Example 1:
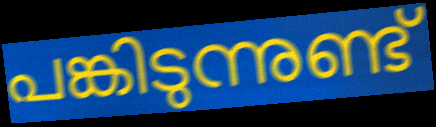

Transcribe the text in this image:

പങ്കിടുന്നുണ്ട്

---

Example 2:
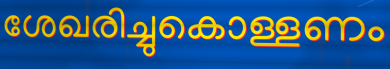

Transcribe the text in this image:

ശേഖരിച്ചുകൊള്ളണം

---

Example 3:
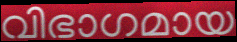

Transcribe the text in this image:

വിഭാഗമായ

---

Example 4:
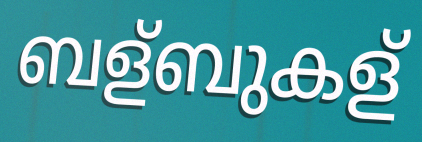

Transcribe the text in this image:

ബള്ബുകള്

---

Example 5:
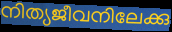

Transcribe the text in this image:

നിത്യജീവനിലേക്കു